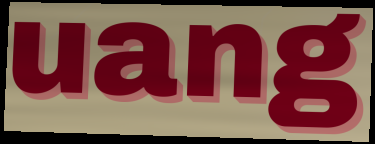
uang